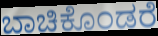
ಬಾಚಿಕೊಂಡರೆ